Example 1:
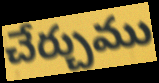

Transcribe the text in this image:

చేర్చుము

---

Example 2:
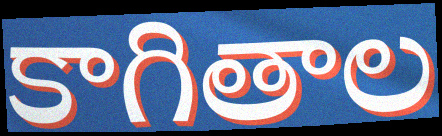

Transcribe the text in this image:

కాగితాల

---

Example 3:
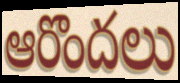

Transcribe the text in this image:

ఆరొందలు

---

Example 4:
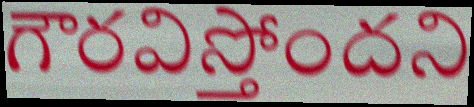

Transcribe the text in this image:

గౌరవిస్తోందని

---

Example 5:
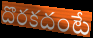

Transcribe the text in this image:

దొరకదంటే